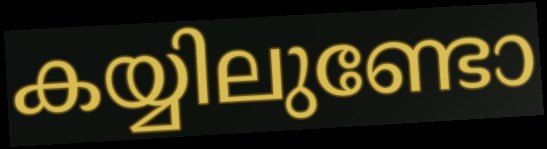
കയ്യിലുണ്ടോ